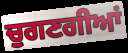
ਚੁਗਣਗੀਆਂ